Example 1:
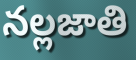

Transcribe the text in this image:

నల్లజాతి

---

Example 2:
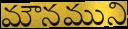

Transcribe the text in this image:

మౌనముని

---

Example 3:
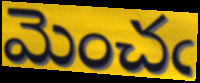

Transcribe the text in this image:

మెంచఁ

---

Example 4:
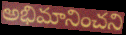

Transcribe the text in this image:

అభిమానించని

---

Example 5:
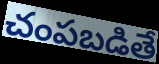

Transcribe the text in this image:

చంపబడితే